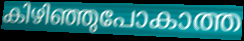
കിഴിഞ്ഞുപോകാത്ത